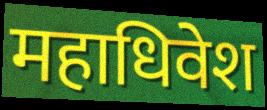
महाधिवेश